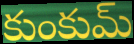
కుంకుమ్